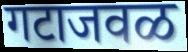
गटाजवळ